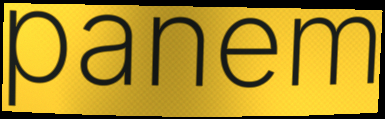
panem